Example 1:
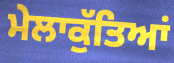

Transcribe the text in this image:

ਮੇਲਾਕੁੱਤਿਆਂ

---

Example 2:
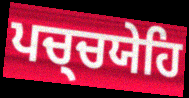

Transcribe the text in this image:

ਪਚ੍ਚਯੇਹਿ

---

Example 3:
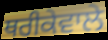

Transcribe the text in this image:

ਥਰੀਕੇਵਾਲੇ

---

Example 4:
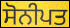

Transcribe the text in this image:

ਸੋਨੀਪਤ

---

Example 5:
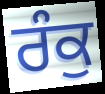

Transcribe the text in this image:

ਰੰਕੁ